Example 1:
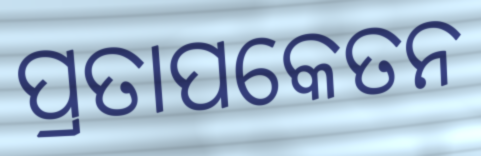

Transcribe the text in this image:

ପ୍ରତାପକେତନ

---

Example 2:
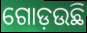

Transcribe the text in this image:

ଗୋଡ଼ଉଛି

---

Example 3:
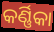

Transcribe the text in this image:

କର୍ଣ୍ଣିକା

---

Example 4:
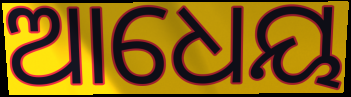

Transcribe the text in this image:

ଆଧେୟ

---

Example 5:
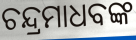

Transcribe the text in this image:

ଚନ୍ଦ୍ରମାଧବଙ୍କ